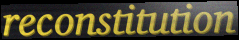
reconstitution